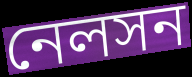
নেলসন